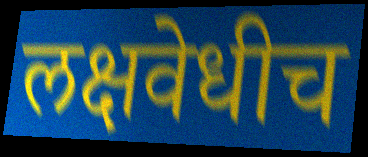
लक्षवेधीच